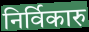
निर्विकारु